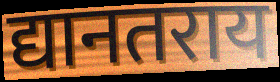
द्यानतराय